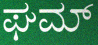
ಘಮ್